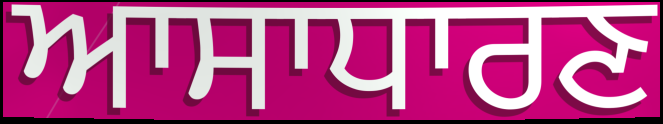
ਆਸਾਧਾਰਣ